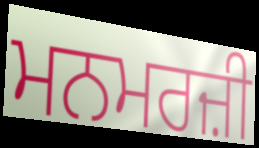
ਮਨਮਰਜ਼ੀ